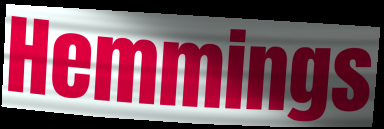
Hemmings